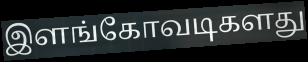
இளங்கோவடிகளது